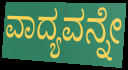
ವಾದ್ಯವನ್ನೇ